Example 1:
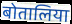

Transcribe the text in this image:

बोतालिया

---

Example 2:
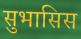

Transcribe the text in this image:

सुभासिस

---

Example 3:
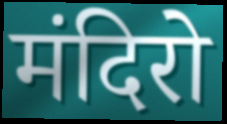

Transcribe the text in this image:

मंदिरो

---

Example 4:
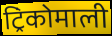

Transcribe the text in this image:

ट्रिंकोमाली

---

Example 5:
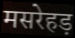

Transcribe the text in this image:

मसरेहड़